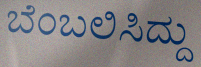
ಬೆಂಬಲಿಸಿದ್ದು